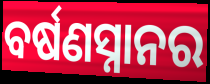
ବର୍ଷଣସ୍ନାନର